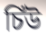
চিঁউ